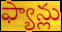
ఫ్యాన్లు